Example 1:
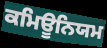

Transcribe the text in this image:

ਕਮਿਊਨਿਯਮ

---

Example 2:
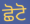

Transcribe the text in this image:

ਛੋਟੋ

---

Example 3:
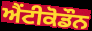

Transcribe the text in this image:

ਐਂਟੀਕੋਡੌਨ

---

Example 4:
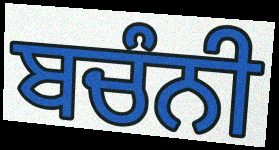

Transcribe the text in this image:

ਬਚੰਨੀ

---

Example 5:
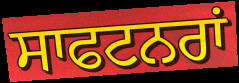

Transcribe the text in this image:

ਸਾਫਟਨਰਾਂ